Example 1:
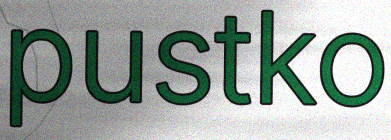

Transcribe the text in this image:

pustko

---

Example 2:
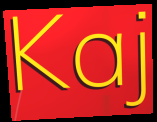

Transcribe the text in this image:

Kaj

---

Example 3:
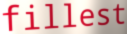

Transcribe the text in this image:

fillest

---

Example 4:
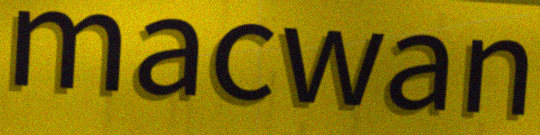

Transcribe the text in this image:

macwan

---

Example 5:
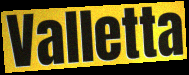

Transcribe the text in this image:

Valletta